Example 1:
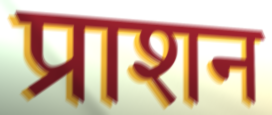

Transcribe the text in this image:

प्राशन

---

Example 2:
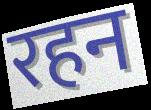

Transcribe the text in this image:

रहन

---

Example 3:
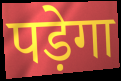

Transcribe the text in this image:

पड़ेगा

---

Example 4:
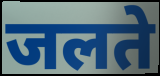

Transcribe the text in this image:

जलते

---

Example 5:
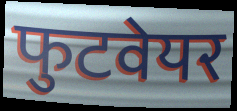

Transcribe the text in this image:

फुटवेयर